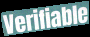
Verifiable